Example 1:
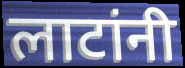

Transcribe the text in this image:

लाटांनी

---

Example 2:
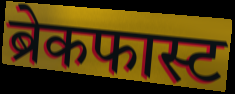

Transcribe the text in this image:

ब्रेकफास्ट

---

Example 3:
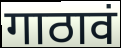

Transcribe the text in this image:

गाठावं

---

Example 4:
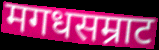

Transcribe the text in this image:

मगधसम्राट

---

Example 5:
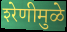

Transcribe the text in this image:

श्रेणीमुळे